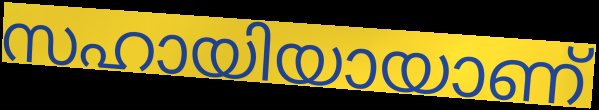
സഹായിയായാണ്